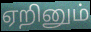
ஏறினும்